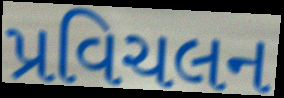
પ્રવિચલન